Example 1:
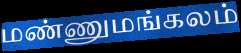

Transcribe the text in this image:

மண்ணுமங்கலம்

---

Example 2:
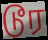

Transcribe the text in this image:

டூர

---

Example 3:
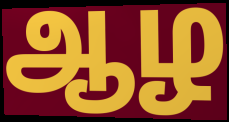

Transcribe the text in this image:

ஆழ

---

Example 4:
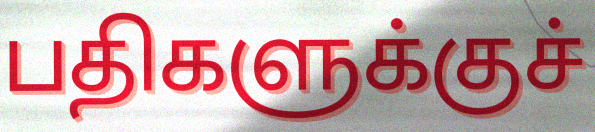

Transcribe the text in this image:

பதிகளுக்குச்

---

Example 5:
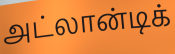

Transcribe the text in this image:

அட்லான்டிக்